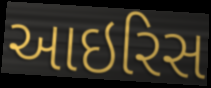
આઇરિસ